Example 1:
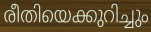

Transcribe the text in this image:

രീതിയെക്കുറിച്ചും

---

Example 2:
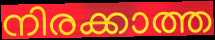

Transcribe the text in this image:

നിരക്കാത്ത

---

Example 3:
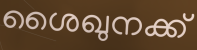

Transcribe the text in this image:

ശൈഖുനക്ക്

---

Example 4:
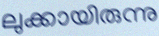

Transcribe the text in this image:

ലുക്കായിരുന്നു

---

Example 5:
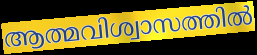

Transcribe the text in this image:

ആത്മവിശ്വാസത്തിൽ